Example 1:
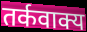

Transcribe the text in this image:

तर्कवाक्य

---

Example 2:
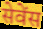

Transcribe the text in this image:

सेवेंस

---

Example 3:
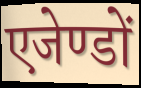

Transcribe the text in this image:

एजेण्डों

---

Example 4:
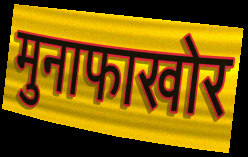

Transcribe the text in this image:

मुनाफाखोर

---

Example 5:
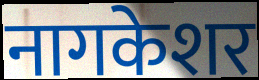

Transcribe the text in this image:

नागकेशर